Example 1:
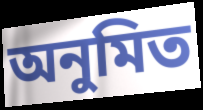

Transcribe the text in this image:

অনুমিত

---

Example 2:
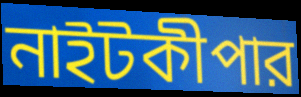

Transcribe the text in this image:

নাইটকীপার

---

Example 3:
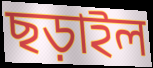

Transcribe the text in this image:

ছড়াইল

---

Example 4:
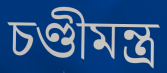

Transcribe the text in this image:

চণ্ডীমন্ত্র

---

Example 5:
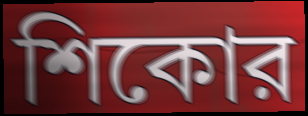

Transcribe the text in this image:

শিকোর